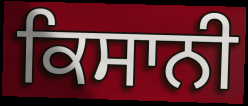
ਕਿਸਾਨੀ